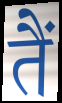
तैं